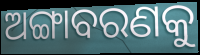
ଅଙ୍ଗାବରଣକୁ